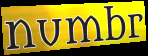
numbr